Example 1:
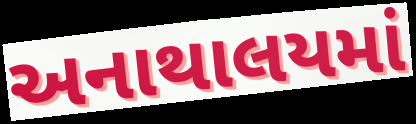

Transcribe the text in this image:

અનાથાલયમાં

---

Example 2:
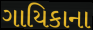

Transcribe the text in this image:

ગાયિકાના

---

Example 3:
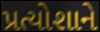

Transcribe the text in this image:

પ્રત્યોશાને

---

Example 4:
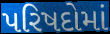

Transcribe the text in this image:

પરિષદોમાં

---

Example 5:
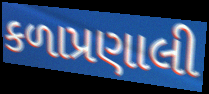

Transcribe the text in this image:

કળાપ્રણાલી